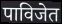
पाविजेत